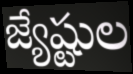
జ్యేష్టుల